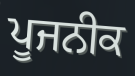
ਪੂਜਨੀਕ